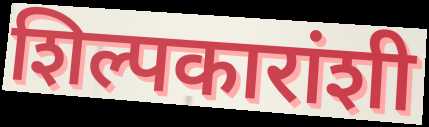
शिल्पकारांशी